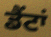
ਡੈਂਟਾਂ